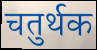
चतुर्थक